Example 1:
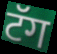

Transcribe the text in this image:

टॅग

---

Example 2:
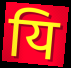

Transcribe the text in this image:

यि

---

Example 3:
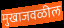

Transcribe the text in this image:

मुखाजवळील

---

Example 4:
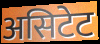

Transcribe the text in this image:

असिटेट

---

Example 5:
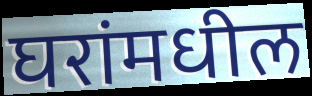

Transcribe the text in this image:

घरांमधील